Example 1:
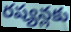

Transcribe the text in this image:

రష్యన్లకు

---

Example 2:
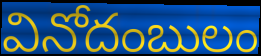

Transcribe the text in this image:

వినోదంబులం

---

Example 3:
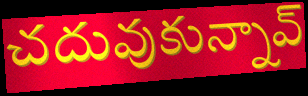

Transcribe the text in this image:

చదువుకున్నావ్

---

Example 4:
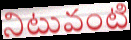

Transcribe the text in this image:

నిటువంటి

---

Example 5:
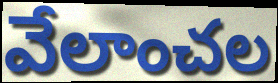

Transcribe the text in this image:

వేలాంచల